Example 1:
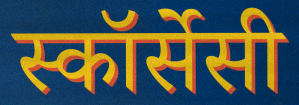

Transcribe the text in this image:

स्कॉर्सेसी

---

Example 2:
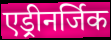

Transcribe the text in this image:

एड्रीनर्जिक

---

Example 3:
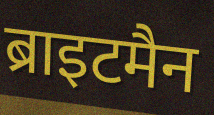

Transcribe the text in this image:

ब्राइटमैन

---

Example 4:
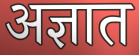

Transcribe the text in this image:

अज्ञात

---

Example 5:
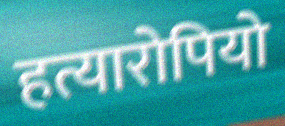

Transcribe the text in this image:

हत्यारोपियो